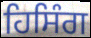
ਹਿਸਿੰਗ